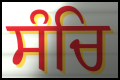
ਸੰਚਿ